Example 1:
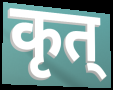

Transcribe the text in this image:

कृत्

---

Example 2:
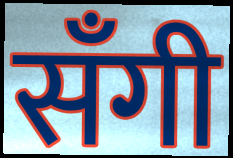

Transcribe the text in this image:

सँगी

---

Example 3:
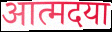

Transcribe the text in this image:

आत्मदया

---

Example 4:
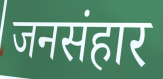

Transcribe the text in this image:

जनसंहार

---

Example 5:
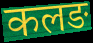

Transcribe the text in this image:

कलङ